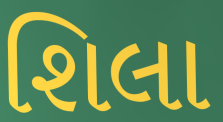
શિલા